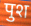
पुश